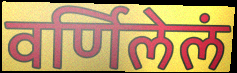
वर्णिलेलं